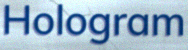
Hologram